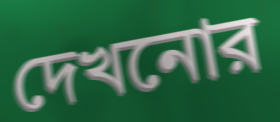
দেখনোর